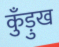
कुँड़ुख